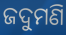
ଜଦୁମଣି